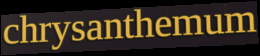
chrysanthemum